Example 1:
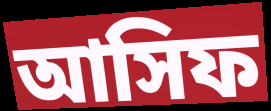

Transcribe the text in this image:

আসিফ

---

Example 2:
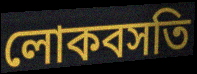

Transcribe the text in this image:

লোকবসতি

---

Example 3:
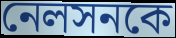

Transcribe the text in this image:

নেলসনকে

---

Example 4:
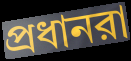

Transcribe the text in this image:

প্রধানরা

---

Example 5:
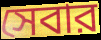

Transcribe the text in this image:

সেবার